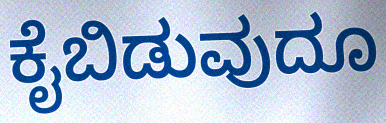
ಕೈಬಿಡುವುದೂ